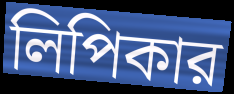
লিপিকার